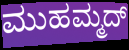
ಮುಹಮ್ಮದ್